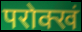
परोक्खं